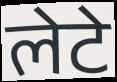
लेटे